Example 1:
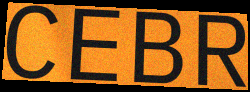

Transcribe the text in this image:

CEBR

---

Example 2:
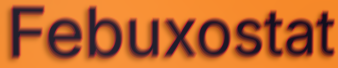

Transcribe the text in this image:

Febuxostat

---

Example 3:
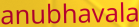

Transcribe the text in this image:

anubhavala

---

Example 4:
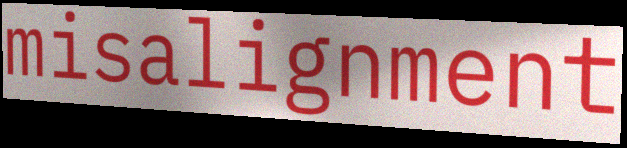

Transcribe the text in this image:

misalignment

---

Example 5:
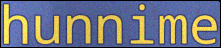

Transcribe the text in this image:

hunnime